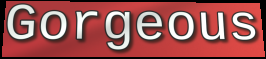
Gorgeous